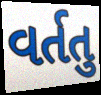
વર્તતુ